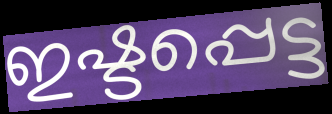
ഇഷ്ടപ്പെട്ട